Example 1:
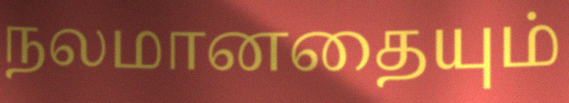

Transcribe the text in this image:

நலமானதையும்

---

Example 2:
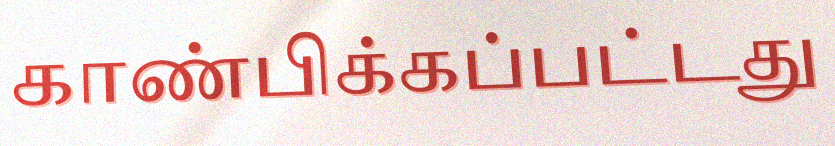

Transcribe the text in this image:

காண்பிக்கப்பட்டது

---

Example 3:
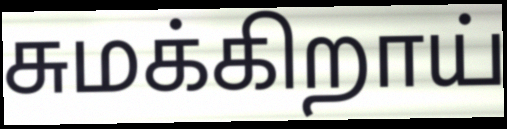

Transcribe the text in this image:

சுமக்கிறாய்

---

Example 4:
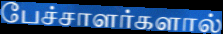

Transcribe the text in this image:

பேச்சாளர்களால்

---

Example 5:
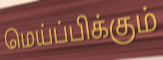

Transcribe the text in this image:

மெய்ப்பிக்கும்